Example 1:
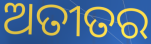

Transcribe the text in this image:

ଅତୀତର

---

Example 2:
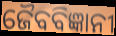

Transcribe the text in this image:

ଜୈବବିଜ୍ଞାନୀ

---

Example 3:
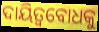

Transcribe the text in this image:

ଦାୟିତ୍ୱବୋଧକୁ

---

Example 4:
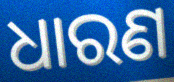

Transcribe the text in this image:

ଧାରଣ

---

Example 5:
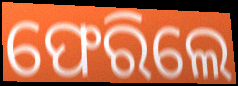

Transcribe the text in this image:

ଫେରିଲେ